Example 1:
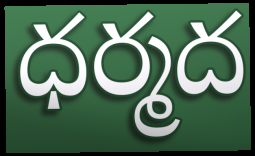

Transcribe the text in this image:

ధర్మద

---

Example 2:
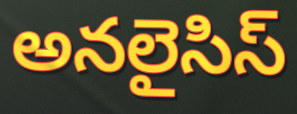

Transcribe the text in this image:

అనలైసిస్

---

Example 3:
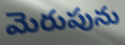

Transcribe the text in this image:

మెరుపును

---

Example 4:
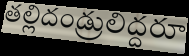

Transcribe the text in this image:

తల్లిదండ్రులిద్దరూ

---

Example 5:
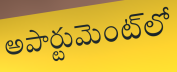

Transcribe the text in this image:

అపార్టుమెంట్‌లో